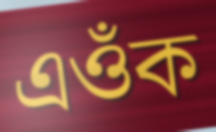
এওঁক